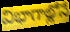
విభాగాల్లోనే